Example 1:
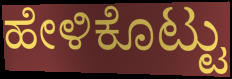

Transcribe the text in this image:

ಹೇಳಿಕೊಟ್ಟು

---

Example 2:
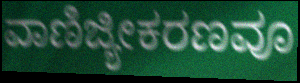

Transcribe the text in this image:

ವಾಣಿಜ್ಯೀಕರಣವೂ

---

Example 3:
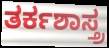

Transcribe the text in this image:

ತರ್ಕಶಾಸ್ತ್ರ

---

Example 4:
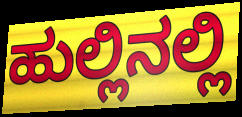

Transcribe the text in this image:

ಹುಲ್ಲಿನಲ್ಲಿ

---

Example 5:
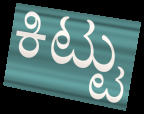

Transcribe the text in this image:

ಕಿಟ್ಟು